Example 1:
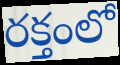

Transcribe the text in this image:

రక్తంలో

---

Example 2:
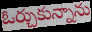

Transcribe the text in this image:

ఓర్చుకున్నాను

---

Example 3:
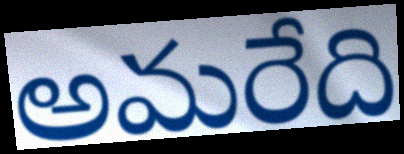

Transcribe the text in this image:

అమరేది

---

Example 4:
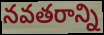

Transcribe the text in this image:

నవతరాన్ని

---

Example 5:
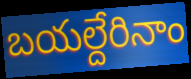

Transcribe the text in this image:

బయల్దేరినాం